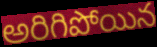
అరిగిపోయిన